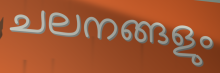
ചലനങ്ങളും